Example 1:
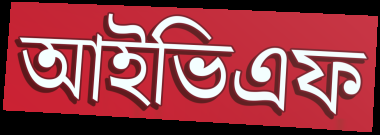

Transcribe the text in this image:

আইভিএফ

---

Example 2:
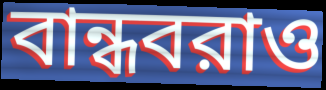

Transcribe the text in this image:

বান্ধবরাও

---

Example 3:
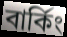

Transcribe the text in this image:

বার্কিং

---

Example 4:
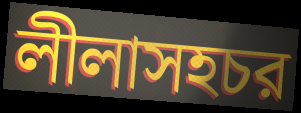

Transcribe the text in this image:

লীলাসহচর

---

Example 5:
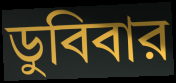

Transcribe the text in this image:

ডুবিবার